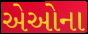
એઓના